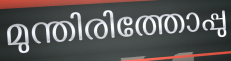
മുന്തിരിത്തോപ്പു